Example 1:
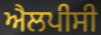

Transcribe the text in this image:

ਐਲਪੀਸੀ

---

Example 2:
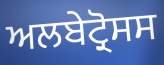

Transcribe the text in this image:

ਅਲਬੇਟ੍ਰੋਸਸ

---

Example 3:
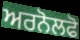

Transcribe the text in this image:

ਅਰਨੋਲਫੋ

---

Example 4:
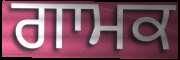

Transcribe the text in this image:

ਗਾਮਕ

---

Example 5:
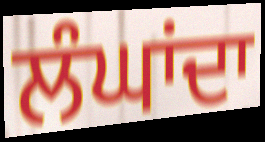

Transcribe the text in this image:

ਲੰਘਾਂਦਾ